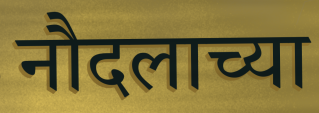
नौदलाच्या